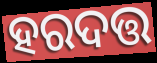
ହରଦତ୍ତ